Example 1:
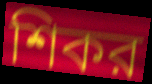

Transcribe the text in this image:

শিকর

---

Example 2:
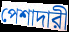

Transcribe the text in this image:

পেশাদারী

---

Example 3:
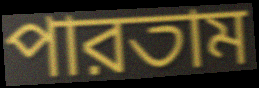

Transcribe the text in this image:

পারতাম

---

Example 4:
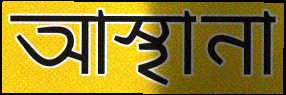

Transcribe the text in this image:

আস্থানা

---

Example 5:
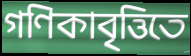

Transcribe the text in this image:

গণিকাবৃত্তিতে